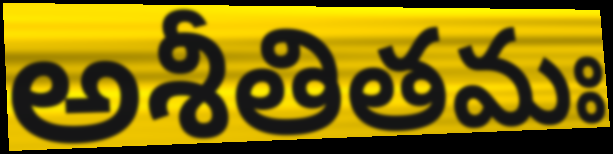
అశీతితమః